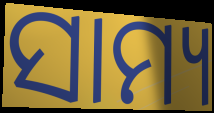
ସାମ୍ୟ